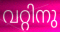
വറ്റിനു